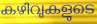
കഴിവുകളുടെ